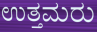
ಉತ್ತಮರು